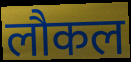
लौकल